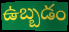
ఉబ్బడం